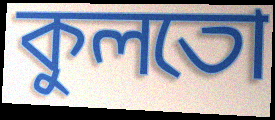
কুলতো